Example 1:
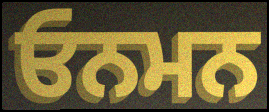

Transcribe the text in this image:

ਓਨਮਨ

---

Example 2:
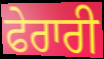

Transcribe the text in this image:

ਫੇਰਾਰੀ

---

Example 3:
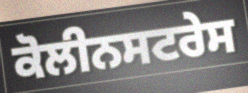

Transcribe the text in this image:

ਕੋਲੀਨਸਟਰੇਸ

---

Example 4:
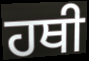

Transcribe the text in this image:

ਹਥੀ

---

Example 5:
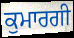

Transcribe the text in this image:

ਕੁਮਾਰਗੀ